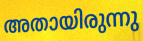
അതായിരുന്നു